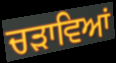
ਚੜਾਵਿਆਂ